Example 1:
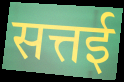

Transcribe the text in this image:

सत्तई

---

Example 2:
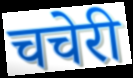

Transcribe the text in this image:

चचेरी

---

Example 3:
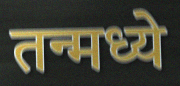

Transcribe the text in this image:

तन्मध्ये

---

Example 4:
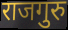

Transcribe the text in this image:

राजगुरु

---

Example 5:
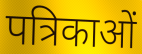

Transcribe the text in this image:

पत्रिकाओं